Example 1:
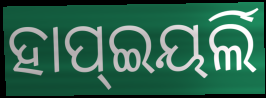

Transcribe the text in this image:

ହାପ୍ଇୟର୍ଲି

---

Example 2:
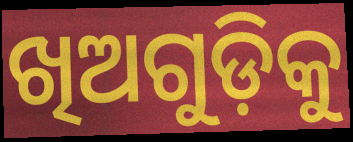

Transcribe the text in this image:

ଖିଅଗୁଡ଼ିକୁ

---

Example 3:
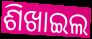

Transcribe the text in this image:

ଶିଖାଇଲ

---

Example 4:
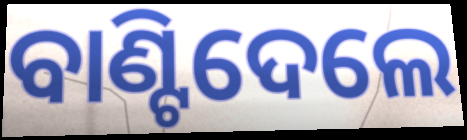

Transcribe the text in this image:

ବାଣ୍ଟିଦେଲେ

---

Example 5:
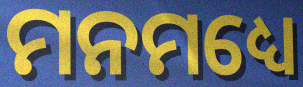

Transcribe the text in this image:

ମନମଧ୍ୟେ